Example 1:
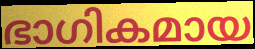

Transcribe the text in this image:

ഭാഗികമായ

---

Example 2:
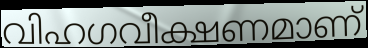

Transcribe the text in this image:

വിഹഗവീക്ഷണമാണ്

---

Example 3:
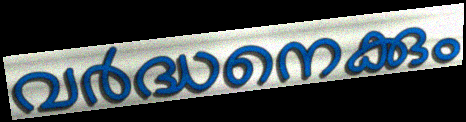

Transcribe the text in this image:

വർദ്ധനെക്കും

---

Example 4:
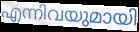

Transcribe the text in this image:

എന്നിവയുമായി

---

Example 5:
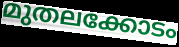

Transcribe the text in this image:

മുതലക്കോടം